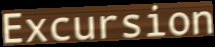
Excursion